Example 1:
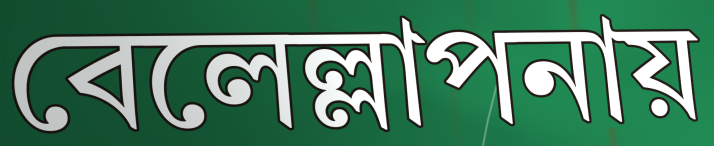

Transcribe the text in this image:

বেলেল্লাপনায়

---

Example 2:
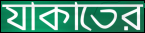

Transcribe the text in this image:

যাকাতের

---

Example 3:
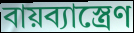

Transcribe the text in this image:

বায়ব্যাস্ত্রেণ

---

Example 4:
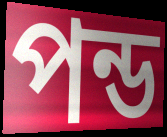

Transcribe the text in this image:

পন্ড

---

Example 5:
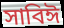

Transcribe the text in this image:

সাবিঈ